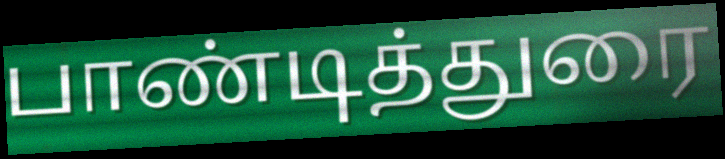
பாண்டித்துரை